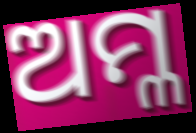
ଅମ୍ଳ